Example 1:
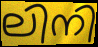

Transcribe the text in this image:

ലിനി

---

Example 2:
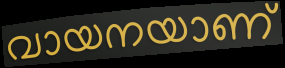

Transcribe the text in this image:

വായനയാണ്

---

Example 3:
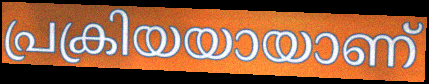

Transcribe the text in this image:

പ്രക്രിയയായാണ്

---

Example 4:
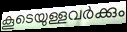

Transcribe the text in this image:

കൂടെയുള്ളവർക്കും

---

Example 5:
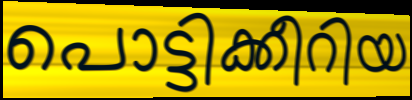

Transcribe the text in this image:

പൊട്ടിക്കീറിയ